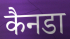
कैनडा